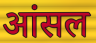
आंसल